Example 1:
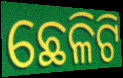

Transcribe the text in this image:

ଛେଳିଟି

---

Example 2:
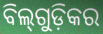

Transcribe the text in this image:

ବିଲ୍‌ଗୁଡ଼ିକର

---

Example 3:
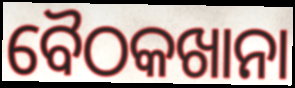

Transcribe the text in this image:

ବୈଠକଖାନା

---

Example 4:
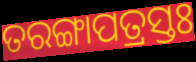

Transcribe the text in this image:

ତରଙ୍ଗାପତ୍ରସ୍ତଃ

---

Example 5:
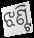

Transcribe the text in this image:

ଝଣ୍ଟି